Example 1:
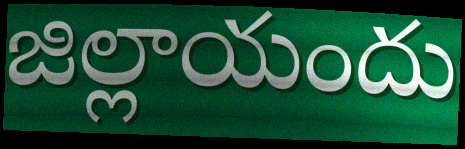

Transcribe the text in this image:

జిల్లాయందు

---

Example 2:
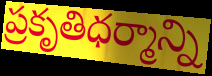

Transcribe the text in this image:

ప్రకృతిధర్మాన్ని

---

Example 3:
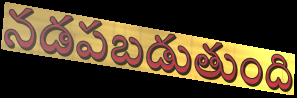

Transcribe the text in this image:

నడపబడుతుంది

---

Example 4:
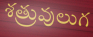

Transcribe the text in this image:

శత్రువులుగ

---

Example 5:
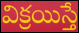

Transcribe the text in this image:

విక్రయిస్తే